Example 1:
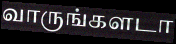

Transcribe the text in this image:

வாருங்களடா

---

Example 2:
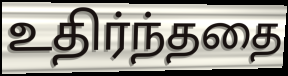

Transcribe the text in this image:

உதிர்ந்ததை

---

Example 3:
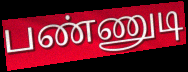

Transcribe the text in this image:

பண்ணுடி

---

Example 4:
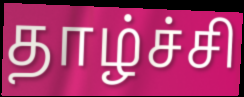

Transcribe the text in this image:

தாழ்ச்சி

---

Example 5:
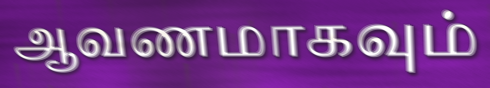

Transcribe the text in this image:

ஆவணமாகவும்